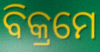
ବିକ୍ରମେ